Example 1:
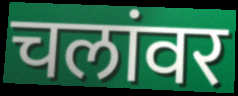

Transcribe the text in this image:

चलांवर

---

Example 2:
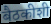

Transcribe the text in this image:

बैठकीशी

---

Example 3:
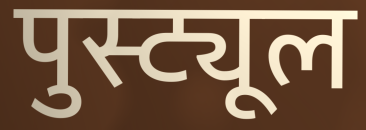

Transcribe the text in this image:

पुस्ट्यूल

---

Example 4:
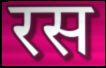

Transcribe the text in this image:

रस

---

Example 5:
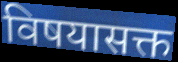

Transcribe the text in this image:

विषयासक्त